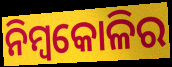
ନିମ୍ବକୋଳିର